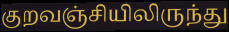
குறவஞ்சியிலிருந்து